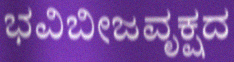
ಭವಿಬೀಜವೃಕ್ಷದ